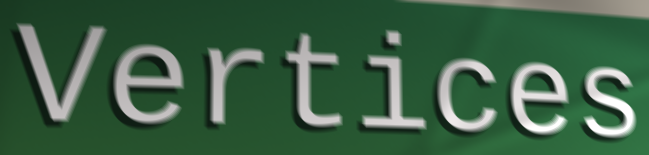
Vertices